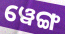
ୱେଙ୍ଗ